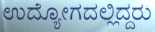
ಉದ್ಯೋಗದಲ್ಲಿದ್ದರು